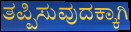
ತಪ್ಪಿಸುವುದಕ್ಕಾಗಿ